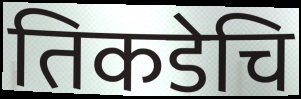
तिकडेचि